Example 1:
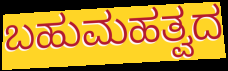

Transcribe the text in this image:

ಬಹುಮಹತ್ವದ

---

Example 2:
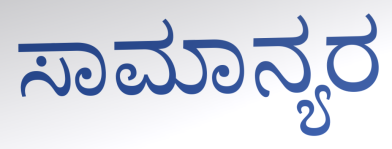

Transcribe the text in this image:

ಸಾಮಾನ್ಯರ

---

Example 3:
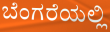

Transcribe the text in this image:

ಬೆಂಗರೆಯಲ್ಲಿ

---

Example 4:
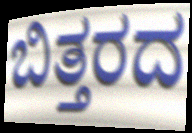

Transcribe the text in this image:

ಬಿತ್ತರದ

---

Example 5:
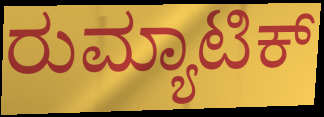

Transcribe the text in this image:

ರುಮ್ಯಾಟಿಕ್